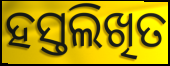
ହସ୍ତଲିଖିତ